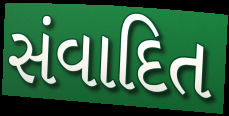
સંવાદિત